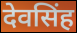
देवसिंह